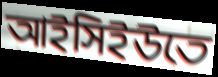
আইসিইউতে